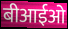
बीआईओ